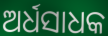
ଅର୍ଧସାଧକ